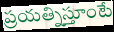
ప్రయత్నిస్తూంటే